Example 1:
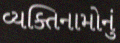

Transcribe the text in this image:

વ્યક્તિનામોનું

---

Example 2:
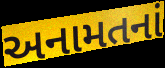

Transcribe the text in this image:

અનામતનાં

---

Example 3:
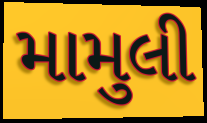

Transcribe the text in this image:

મામુલી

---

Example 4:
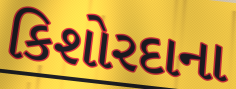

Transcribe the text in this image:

કિશોરદાના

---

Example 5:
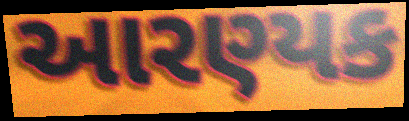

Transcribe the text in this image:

આરણ્યક